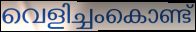
വെളിച്ചംകൊണ്ട്